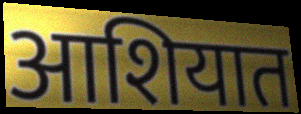
आशियात